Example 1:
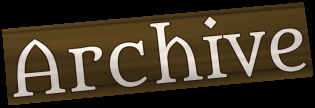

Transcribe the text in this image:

Archive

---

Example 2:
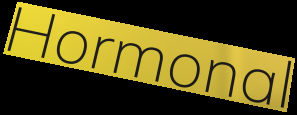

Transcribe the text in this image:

Hormonal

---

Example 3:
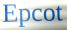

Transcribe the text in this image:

Epcot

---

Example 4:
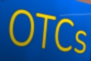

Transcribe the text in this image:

OTCs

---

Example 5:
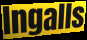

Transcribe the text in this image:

Ingalls